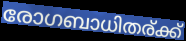
രോഗബാധിതര്ക്ക്